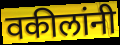
वकीलांनी